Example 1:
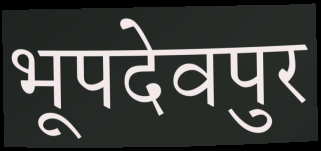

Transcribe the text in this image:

भूपदेवपुर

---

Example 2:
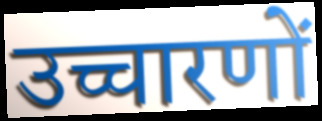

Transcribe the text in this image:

उच्चारणों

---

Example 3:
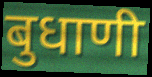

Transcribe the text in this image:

बुधाणी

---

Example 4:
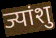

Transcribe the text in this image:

ज्यांशु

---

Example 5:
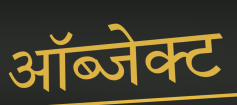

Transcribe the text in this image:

ऑब्‍जेक्‍ट